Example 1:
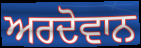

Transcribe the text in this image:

ਅਰਦੋਵਾਨ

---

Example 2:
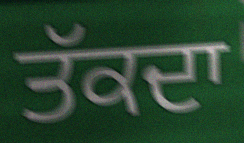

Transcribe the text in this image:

ਤੱਕਦਾ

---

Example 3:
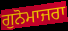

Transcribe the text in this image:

ਗੁਨੋਮਾਜਰਾ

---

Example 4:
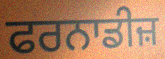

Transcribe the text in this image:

ਫਰਨਾਡੀਜ਼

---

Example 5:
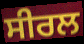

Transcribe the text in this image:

ਸੀਰਲ